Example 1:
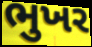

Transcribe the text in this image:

ભુખર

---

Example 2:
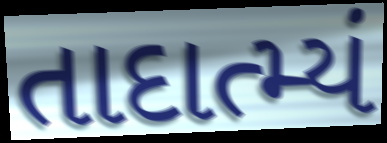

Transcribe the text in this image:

તાદાત્મ્યં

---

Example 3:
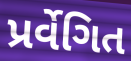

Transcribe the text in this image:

પ્રર્વેગિત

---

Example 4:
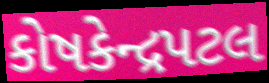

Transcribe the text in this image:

કોષકેન્દ્રપટલ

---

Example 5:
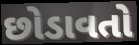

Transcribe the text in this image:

છોડાવતો